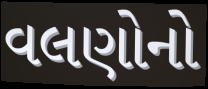
વલણોનો